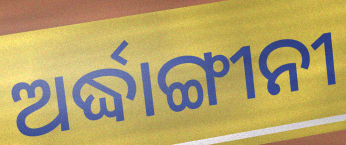
ଅର୍ଦ୍ଧାଙ୍ଗୀନୀ